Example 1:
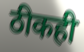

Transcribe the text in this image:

ठीकही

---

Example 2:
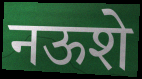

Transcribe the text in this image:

नऊशे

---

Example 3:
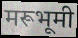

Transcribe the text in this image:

मरूभूमी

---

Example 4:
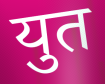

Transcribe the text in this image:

युत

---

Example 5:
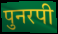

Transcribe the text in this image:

पुनरपी